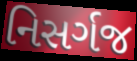
નિસર્ગજ